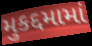
મુકદ્દમામાં